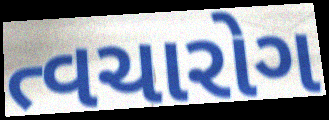
ત્વચારોગ